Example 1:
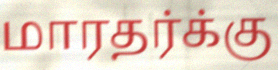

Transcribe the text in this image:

மாரதர்க்கு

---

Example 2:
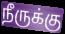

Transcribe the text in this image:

நீருக்கு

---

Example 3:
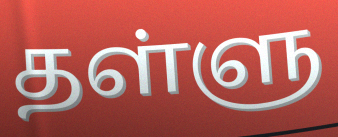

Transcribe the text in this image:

தள்ளு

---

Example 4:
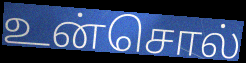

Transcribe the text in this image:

உன்சொல்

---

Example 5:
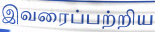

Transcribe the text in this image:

இவரைப்பற்றிய